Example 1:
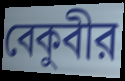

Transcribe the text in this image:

বেকুবীর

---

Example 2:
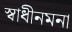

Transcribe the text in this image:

স্বাধীনমনা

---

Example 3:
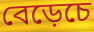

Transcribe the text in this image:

বেড়েচে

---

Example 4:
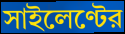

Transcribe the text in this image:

সাইলেণ্টের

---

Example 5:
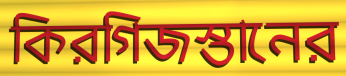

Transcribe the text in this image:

কিরগিজস্তানের